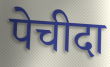
पेचीदा